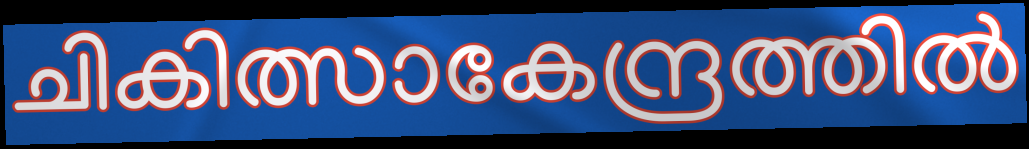
ചികിത്സാകേന്ദ്രത്തിൽ